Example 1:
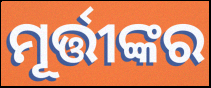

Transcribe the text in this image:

ମୂର୍ତ୍ତୀଙ୍କର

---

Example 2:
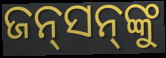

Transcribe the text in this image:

ଜନ୍‍ସନ୍‍ଙ୍କୁ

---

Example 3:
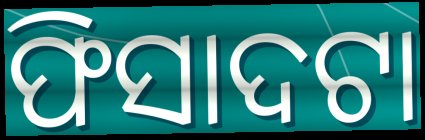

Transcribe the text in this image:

ଫିସାଦଟା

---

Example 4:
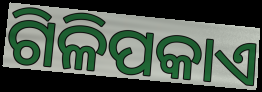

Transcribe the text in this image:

ଗିଳିପକାଏ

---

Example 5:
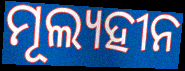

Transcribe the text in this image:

ମୂଲ୍ୟହୀନ